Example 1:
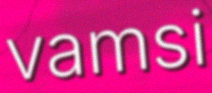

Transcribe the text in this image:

vamsi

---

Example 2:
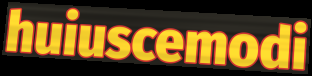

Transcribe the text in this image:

huiuscemodi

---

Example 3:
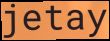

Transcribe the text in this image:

jetay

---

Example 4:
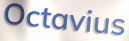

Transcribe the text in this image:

Octavius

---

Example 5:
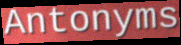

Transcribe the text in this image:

Antonyms